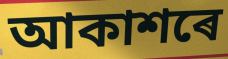
আকাশৰে